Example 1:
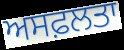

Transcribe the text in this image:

ਅਸਫ਼ਲਤਾ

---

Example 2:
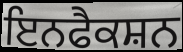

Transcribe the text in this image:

ਇਨਫੈਕਸ਼ਨ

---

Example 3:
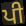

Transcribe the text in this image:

ਪੀ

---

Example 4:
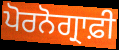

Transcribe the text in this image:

ਪੋਰਨੋਗ੍ਰਾਫ਼ੀ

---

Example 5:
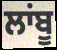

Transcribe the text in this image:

ਲਾਂਬੂ